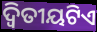
ଦ୍ୱିତୀୟଟିଏ